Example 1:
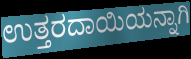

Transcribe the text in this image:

ಉತ್ತರದಾಯಿಯನ್ನಾಗಿ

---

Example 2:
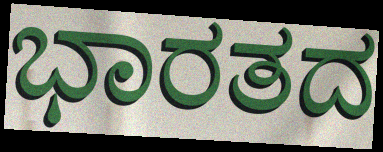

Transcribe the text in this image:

ಭಾರತದ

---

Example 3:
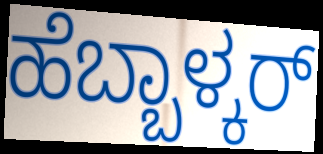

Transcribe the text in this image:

ಹೆಬ್ಬಾಳ್ಕರ್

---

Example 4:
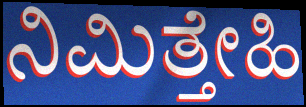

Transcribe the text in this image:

ನಿಮಿತ್ತೇಹಿ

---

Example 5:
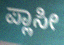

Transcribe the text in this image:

ಪ್ಲಾಸೀ